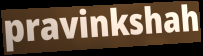
pravinkshah